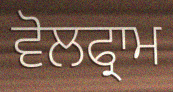
ਵੋਲਫ੍ਰਾਮ